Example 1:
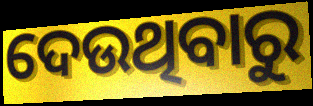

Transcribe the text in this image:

ଦେଉଥିବାରୁ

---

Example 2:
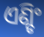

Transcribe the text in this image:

ଏଣ୍ଡିଂ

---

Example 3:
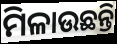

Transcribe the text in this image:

ମିଳାଉଛନ୍ତି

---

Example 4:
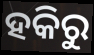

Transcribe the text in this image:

ହକିରୁ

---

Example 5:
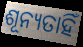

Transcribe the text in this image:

ଶୂନ୍ୟତାହିଁ